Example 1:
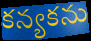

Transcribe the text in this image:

కన్యకను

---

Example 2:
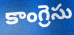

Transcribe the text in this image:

కాంగ్రెసు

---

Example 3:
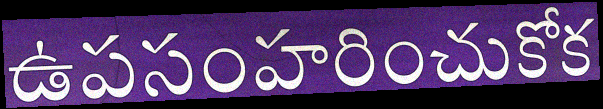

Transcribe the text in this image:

ఉపసంహరించుకోక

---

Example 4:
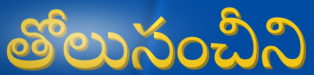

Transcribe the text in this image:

తోలుసంచీని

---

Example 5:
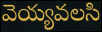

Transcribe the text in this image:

వెయ్యవలసి